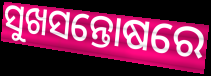
ସୁଖସନ୍ତୋଷରେ